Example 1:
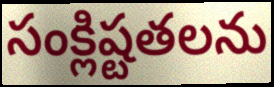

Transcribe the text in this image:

సంక్లిష్టతలను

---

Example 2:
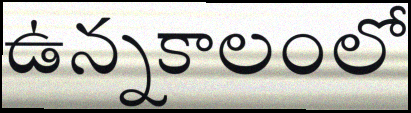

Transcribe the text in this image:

ఉన్నకాలంలో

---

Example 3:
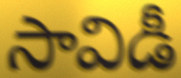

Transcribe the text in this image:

సావిడీ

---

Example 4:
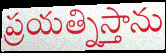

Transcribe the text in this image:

ప్రయత్నిస్తాను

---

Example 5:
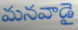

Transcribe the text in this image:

మనవాడై